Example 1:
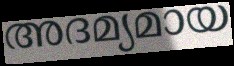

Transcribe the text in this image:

അദമ്യമായ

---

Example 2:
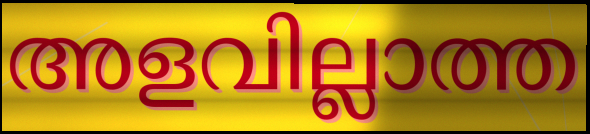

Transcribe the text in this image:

അളവില്ലാത്ത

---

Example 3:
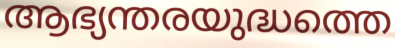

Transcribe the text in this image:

ആഭ്യന്തരയുദ്ധത്തെ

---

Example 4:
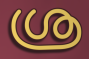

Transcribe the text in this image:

ശ്ര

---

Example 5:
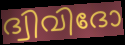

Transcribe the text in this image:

ദ്വിവിദോ